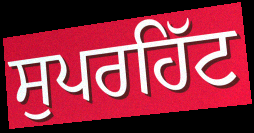
ਸੁਪਰਹਿੱਟ